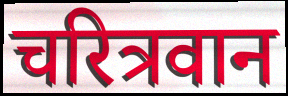
चरित्रवान